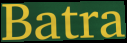
Batra